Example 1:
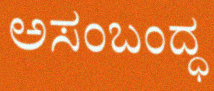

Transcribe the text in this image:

ಅಸಂಬಂದ್ಧ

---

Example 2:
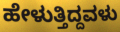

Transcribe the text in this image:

ಹೇಳುತ್ತಿದ್ದವಳು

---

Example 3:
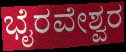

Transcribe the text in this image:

ಭೈರವೇಶ್ವರ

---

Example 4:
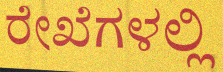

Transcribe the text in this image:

ರೇಖೆಗಳಲ್ಲಿ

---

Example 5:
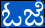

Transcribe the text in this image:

ಓಜೆ